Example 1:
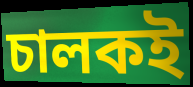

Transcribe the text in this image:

চালকই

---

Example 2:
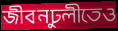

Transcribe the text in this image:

জীবনঢুলীতেও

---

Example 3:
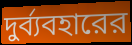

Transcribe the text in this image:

দুর্ব্যবহারের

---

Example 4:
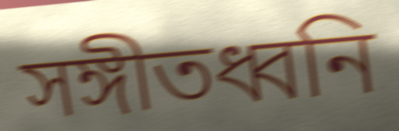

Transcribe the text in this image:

সঙ্গীতধ্বনি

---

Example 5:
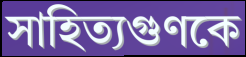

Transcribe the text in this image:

সাহিত্যগুণকে